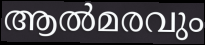
ആൽമരവും